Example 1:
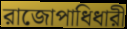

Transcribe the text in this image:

রাজোপাধিধারী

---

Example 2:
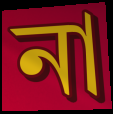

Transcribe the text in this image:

না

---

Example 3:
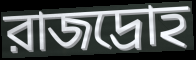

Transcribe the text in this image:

রাজদ্রোহ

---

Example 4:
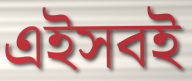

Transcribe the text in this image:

এইসবই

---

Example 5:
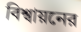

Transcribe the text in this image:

বিশ্বায়নের